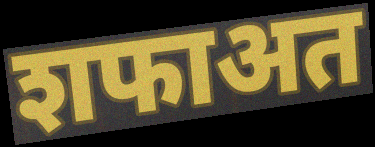
शफाअत